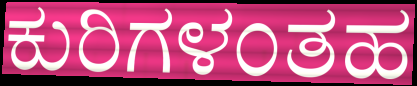
ಕುರಿಗಳಂತಹ